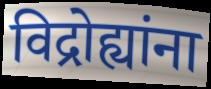
विद्रोह्यांना